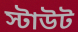
স্টাউট